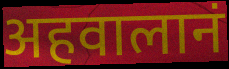
अहवालानं